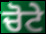
ਚੋਟੇ